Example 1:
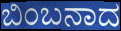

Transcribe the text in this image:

ಬಿಂಬನಾದ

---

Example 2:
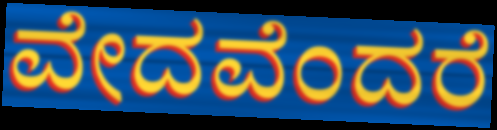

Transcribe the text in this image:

ವೇದವೆಂದರೆ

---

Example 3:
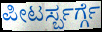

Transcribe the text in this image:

ಪೀಟರ್ಸ್ಬರ್ಗ್ಗೆ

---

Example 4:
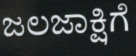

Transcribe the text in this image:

ಜಲಜಾಕ್ಷಿಗೆ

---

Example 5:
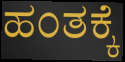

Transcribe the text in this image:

ಹಂತಕ್ಕೆ